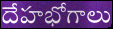
దేహభోగాలు